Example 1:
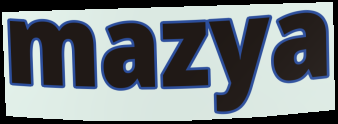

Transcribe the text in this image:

mazya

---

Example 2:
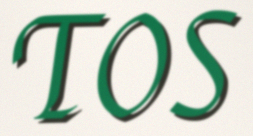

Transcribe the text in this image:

TOS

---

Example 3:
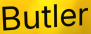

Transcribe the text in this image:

Butler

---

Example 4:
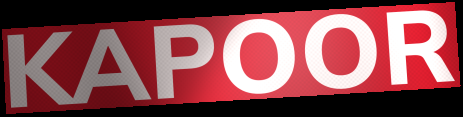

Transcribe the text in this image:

KAPOOR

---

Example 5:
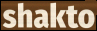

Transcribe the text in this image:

shakto